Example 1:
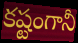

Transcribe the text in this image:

కష్టంగానీ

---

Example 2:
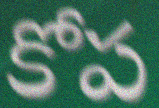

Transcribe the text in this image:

కోప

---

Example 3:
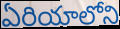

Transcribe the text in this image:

ఏరియాలోని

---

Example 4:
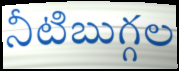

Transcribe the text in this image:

నీటిబుగ్గల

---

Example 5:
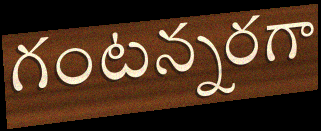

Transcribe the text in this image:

గంటన్నరగా